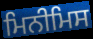
ਮਿਨੀਮਿਸ